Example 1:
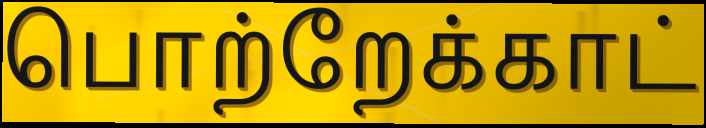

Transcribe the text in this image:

பொற்றேக்காட்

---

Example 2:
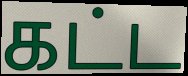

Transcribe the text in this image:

கட்ட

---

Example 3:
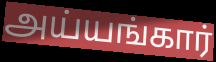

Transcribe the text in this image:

அய்யங்கார்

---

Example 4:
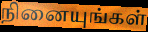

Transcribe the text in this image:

நினையுங்கள்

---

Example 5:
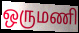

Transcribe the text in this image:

ஒருமணி